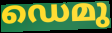
ഡെമു